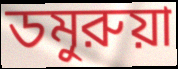
ডমুরুয়া